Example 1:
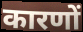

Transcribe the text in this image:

कारणों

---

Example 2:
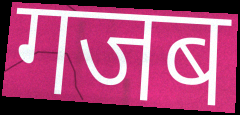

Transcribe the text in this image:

गजब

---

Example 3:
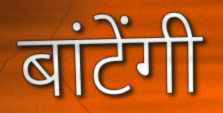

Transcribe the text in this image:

बांटेंगी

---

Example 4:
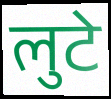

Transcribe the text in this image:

लुटे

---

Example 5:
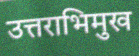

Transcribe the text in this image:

उत्तराभिमुख